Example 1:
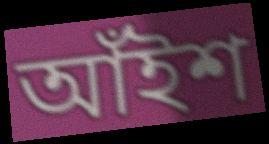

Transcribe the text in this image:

আঁইশ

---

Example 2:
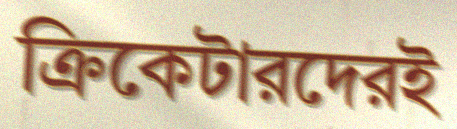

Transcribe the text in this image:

ক্রিকেটারদেরই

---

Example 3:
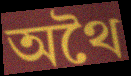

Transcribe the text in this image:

অথৈ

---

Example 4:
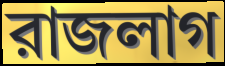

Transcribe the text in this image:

রাজলাগ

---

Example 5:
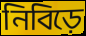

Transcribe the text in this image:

নিবিড়ে